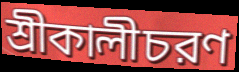
শ্রীকালীচরণ